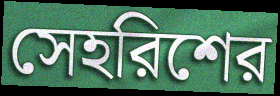
সেহরিশের